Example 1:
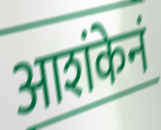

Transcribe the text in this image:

आशंकेनं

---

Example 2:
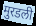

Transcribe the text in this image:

मुरडली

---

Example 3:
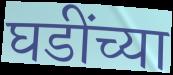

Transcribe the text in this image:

घडींच्या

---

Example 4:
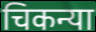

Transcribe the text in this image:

चिकन्या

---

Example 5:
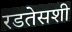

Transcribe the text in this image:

रडतेसशी